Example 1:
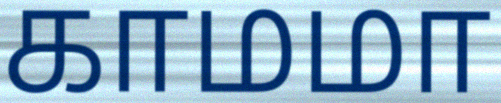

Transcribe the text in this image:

காமமா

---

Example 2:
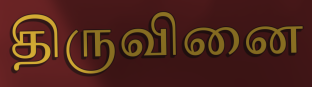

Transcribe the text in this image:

திருவினை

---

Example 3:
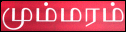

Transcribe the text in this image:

மும்மரம்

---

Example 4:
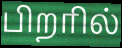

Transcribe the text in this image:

பிறரில்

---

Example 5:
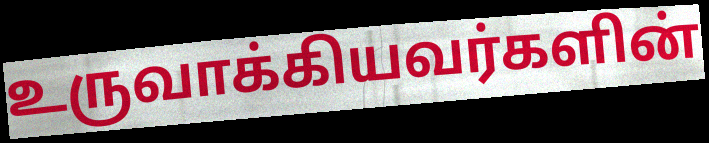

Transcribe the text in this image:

உருவாக்கியவர்களின்